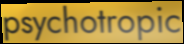
psychotropic